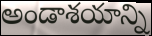
అండాశయాన్ని